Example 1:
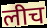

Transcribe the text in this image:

लीच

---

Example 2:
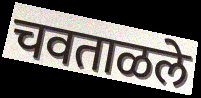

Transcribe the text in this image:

चवताळले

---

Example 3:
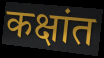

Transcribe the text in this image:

कक्षांत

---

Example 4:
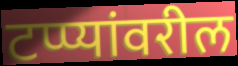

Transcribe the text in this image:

टप्प्यांवरील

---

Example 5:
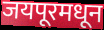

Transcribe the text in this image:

जयपूरमधून